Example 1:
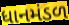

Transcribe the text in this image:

ધાનમંડળ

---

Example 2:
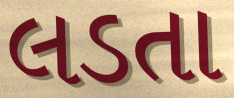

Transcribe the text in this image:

લડતા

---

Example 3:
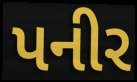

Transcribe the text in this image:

પનીર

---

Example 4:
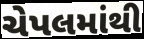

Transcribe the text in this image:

ચેપલમાંથી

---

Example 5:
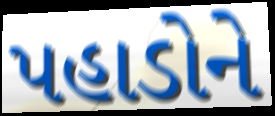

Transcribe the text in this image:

પહાડોને